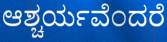
ಆಶ್ಚರ್ಯವೆಂದರೆ